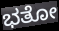
ಭತೋ